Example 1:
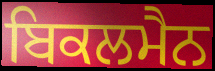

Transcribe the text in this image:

ਬਿਕਲਮੈਨ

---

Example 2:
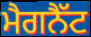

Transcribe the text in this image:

ਮੈਗਨੈੱਟ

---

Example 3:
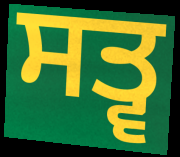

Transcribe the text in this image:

ਸਤ੍ਵ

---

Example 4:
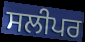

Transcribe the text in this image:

ਸਲੀਪਰ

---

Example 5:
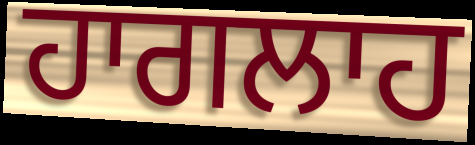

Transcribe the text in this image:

ਹਾਗਲਾਹ